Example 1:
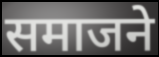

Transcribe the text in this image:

समाजने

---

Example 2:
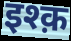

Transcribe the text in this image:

इश्क़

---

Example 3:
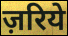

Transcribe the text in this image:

ज़रिये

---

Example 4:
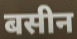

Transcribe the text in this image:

बसीन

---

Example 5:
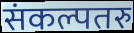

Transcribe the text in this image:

संकल्पतरु